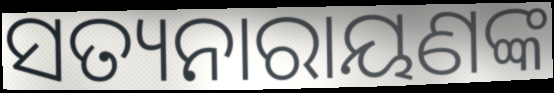
ସତ୍ୟନାରାୟଣଙ୍କ